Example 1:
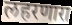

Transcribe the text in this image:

लहरणारा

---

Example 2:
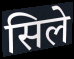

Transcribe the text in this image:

सिले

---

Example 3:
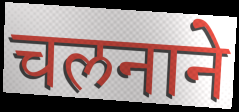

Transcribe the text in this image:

चलनाने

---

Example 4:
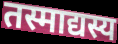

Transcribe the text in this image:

तस्माद्यस्य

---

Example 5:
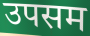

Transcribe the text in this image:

उपसम